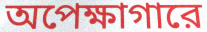
অপেক্ষাগারে